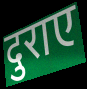
दुराए